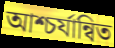
আশ্চর্যান্বিত